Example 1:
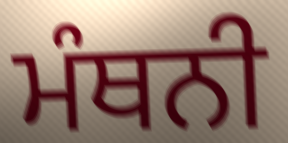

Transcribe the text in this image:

ਮੰਥਨੀ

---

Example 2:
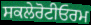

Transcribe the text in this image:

ਸਕਲੇਰੋਟੀਓਰਮ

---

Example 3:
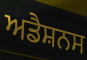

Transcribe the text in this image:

ਅਡੈਸ਼ਨਸ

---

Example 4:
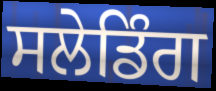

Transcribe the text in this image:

ਸਲੇਡਿੰਗ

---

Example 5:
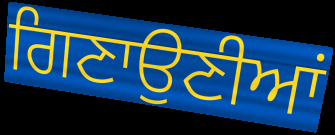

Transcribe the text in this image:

ਗਿਣਾਉਣੀਆਂ